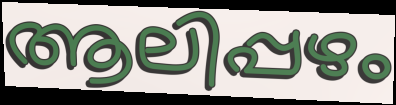
ആലിപ്പഴം